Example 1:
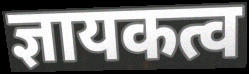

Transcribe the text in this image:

ज्ञायकत्व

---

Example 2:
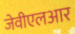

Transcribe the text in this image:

जेवीएलआर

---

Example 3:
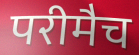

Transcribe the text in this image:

परीमैच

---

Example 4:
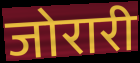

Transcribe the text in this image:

जोरारी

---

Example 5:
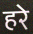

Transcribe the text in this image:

हरे